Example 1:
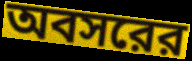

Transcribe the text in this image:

অবসরের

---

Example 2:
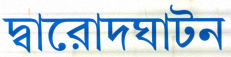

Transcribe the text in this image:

দ্বারোদঘাটন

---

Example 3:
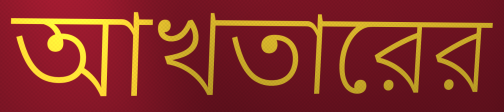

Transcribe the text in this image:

আখতারের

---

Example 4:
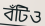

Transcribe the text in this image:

বঁটিও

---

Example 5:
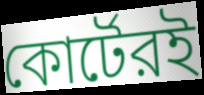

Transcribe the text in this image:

কোর্টেরই